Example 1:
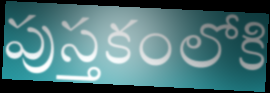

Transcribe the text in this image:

పుస్తకంలోకి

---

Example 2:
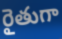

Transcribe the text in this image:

రైతుగా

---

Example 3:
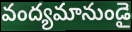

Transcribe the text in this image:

వంద్యమానుండై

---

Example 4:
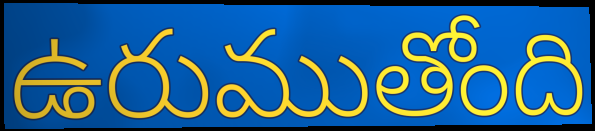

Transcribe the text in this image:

ఉరుముతోంది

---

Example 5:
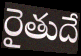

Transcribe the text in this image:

రైతుదే